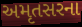
અમૃતસરના